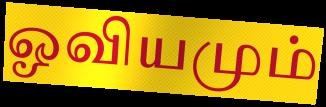
ஓவியமும்